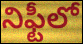
నిఫ్టీలో